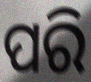
ପରି